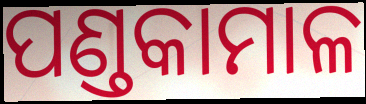
ପଣ୍ଡକାମାଳ